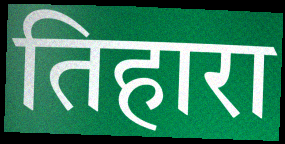
तिहारा